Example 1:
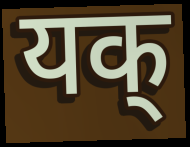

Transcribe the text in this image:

यक्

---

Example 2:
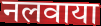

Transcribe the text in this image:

नलवाया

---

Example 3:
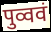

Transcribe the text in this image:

पुव्ववं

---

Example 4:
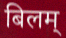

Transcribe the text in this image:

बिलम्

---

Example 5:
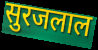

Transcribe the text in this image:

सुरजलाल